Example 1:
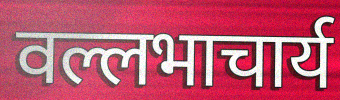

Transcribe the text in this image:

वल्लभाचार्य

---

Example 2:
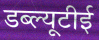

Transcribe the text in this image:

डब्ल्यूटीई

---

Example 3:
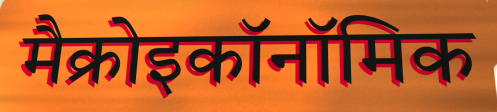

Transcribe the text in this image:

मैक्रोइकॉनॉमिक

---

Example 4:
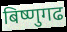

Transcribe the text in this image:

बिष्णुगढ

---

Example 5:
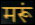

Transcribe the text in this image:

मरूं